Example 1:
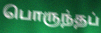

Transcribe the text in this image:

பொருந்தப்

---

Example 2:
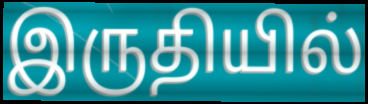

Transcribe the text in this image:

இருதியில்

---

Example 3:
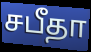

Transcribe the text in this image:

சபீதா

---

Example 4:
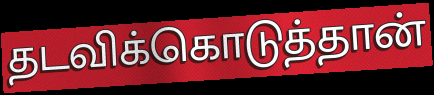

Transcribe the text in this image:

தடவிக்கொடுத்தான்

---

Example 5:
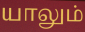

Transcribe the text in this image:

யாலும்